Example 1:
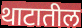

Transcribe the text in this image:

थाटातील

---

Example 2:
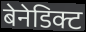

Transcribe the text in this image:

बेनेडिक्ट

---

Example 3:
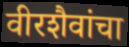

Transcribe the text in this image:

वीरशैवांचा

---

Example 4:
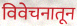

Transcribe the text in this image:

विवेचनातून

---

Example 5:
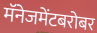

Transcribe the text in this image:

मॅनेजमेंटबरोबर